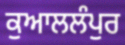
ਕੁਆਲਲੰਪੁਰ